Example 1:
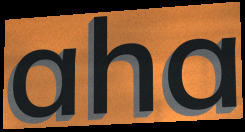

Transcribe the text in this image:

aha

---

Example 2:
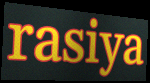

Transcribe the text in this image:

rasiya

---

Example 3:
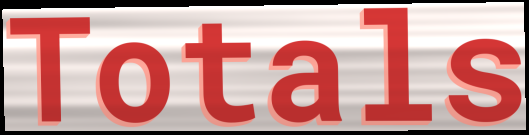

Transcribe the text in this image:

Totals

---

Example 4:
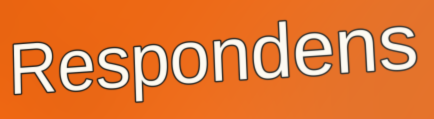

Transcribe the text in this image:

Respondens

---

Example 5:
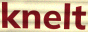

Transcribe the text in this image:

knelt